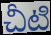
చీటి